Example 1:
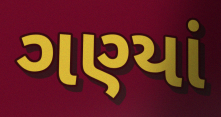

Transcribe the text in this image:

ગણ્યાં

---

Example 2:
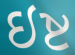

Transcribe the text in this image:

ઇષ્ટ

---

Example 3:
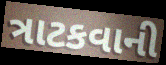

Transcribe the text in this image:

ત્રાટકવાની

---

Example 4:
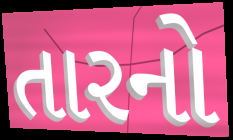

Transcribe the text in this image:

તારનો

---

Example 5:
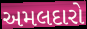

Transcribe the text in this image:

અમલદારો